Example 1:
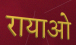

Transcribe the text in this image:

रायाओ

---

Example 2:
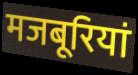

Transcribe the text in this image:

मजबूरियां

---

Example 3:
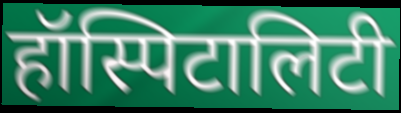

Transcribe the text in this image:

हॉस्पिटालिटी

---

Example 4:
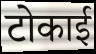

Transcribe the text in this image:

टोकाई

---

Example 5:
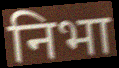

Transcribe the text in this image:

निभा